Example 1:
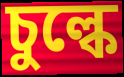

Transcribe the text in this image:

চুল্কে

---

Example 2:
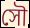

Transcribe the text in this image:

সৌ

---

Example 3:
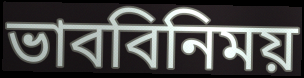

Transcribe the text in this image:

ভাববিনিময়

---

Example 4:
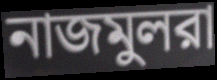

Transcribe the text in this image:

নাজমুলরা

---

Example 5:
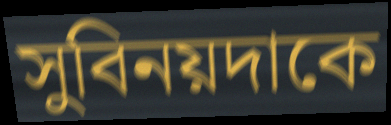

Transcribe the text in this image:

সুবিনয়দাকে